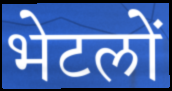
भेटलों